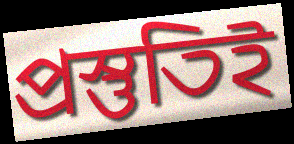
প্রস্তুতিই